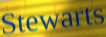
Stewarts